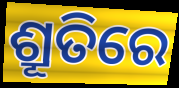
ଶ୍ରୂତିରେ